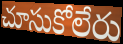
చూసుకోలేరు